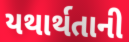
યથાર્થતાની